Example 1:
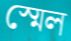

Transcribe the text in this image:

স্মেল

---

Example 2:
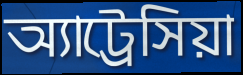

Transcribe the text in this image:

অ্যাট্রেসিয়া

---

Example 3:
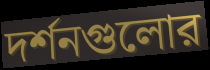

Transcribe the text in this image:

দর্শনগুলোর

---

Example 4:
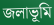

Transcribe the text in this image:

জলাভূমি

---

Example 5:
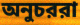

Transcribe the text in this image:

অনুচররা